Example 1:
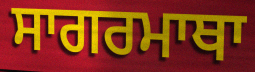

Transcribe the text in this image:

ਸਾਗਰਮਾਥਾ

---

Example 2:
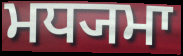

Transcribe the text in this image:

ਮਧ੍ਯਮਾ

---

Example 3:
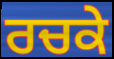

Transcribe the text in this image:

ਰਚਕੇ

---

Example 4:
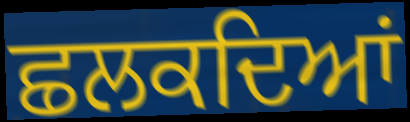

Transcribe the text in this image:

ਛਲਕਦਿਆਂ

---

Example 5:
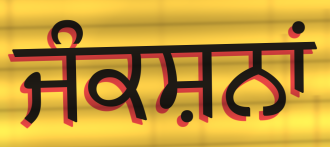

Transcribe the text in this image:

ਜੰਕਸ਼ਨਾਂ